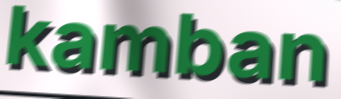
kamban